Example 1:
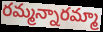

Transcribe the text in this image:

రమ్మన్నారమ్మా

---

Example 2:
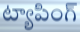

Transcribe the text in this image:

ట్యాపింగ్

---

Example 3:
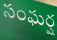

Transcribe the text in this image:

సంఘర్ష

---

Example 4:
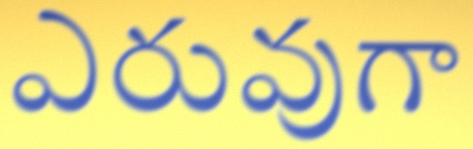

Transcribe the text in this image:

ఎరువుగా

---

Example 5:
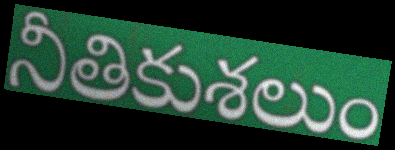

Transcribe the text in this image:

నీతికుశలుం